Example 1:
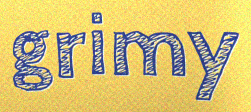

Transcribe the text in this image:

grimy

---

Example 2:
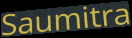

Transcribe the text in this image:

Saumitra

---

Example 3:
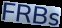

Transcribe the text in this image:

FRBs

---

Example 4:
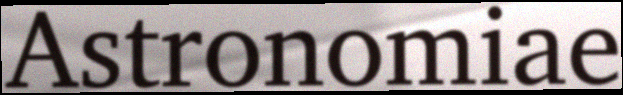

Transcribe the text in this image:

Astronomiae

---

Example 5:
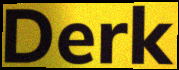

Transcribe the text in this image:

Derk